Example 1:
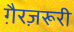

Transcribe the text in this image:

ग़ैरज़रूरी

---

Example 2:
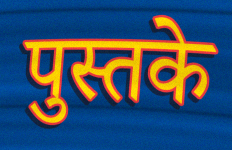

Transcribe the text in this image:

पुस्तके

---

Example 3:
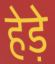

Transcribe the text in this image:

हेड़े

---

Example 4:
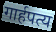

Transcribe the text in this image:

गार्हपत्य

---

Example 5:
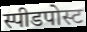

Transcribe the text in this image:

स्पीडपोस्ट